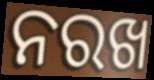
ନରଖ